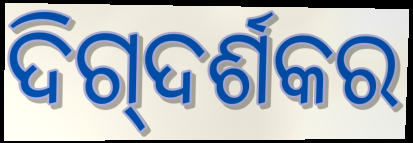
ଦିଗ୍‌ଦର୍ଶକର